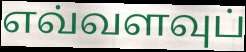
எவ்வளவுப்